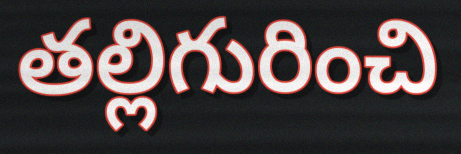
తల్లిగురించి